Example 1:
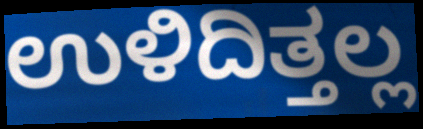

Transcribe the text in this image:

ಉಳಿದಿತ್ತಲ್ಲ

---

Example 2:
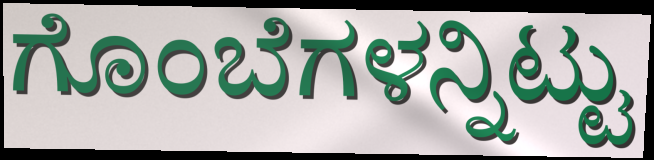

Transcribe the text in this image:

ಗೊಂಬೆಗಳನ್ನಿಟ್ಟು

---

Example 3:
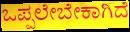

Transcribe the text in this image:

ಒಪ್ಪಲೇಬೇಕಾಗಿದೆ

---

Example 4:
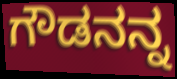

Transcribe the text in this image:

ಗೌಡನನ್ನ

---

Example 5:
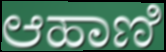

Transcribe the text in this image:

ಆಹಾಣಿ